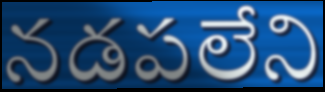
నడపలేని